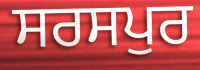
ਸਰਸਪੁਰ